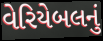
વેરિયેબલનું